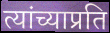
त्यांच्याप्रति